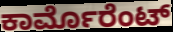
ಕಾರ್ಮೊರೆಂಟ್